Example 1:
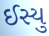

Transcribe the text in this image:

ઈસ્યુ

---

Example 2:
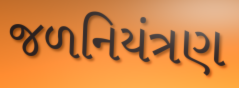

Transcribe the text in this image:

જળનિયંત્રણ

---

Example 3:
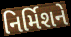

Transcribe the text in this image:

નિર્મિશને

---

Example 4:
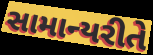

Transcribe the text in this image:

સામાન્યરીતે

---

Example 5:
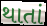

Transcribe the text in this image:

થાતાં